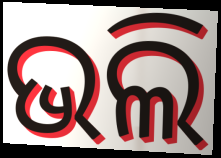
ଭଲି